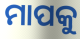
ମାପକୁ